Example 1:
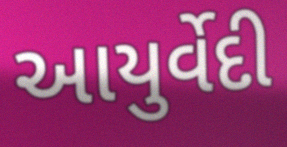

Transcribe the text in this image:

આયુર્વેદી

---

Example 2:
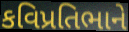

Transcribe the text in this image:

કવિપ્રતિભાને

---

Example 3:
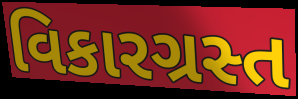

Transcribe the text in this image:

વિકારગ્રસ્ત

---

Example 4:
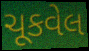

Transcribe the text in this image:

ચૂકવેલ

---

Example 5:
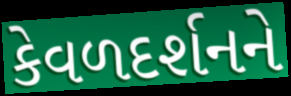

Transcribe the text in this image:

કેવળદર્શનને